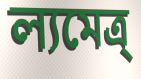
ল্যমেত্র্